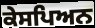
ਕੇਸਪਿਅਨ